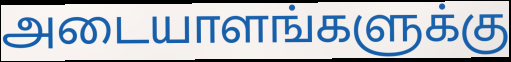
அடையாளங்களுக்கு